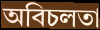
অবিচলতা